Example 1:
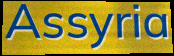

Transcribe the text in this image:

Assyria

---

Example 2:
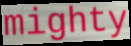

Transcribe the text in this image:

mighty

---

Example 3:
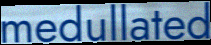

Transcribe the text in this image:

medullated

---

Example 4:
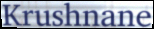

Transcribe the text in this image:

Krushnane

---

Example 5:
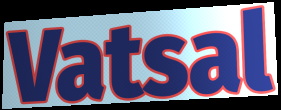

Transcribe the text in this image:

Vatsal